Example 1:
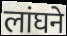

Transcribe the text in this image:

लांघने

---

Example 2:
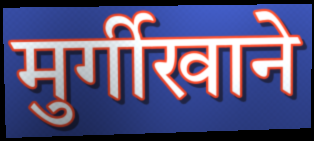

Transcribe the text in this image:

मुर्गीखाने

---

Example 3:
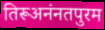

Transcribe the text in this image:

तिरूअनंनतपुरम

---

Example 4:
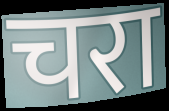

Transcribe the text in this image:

चरा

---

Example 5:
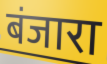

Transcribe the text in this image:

बंजारा